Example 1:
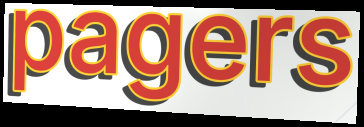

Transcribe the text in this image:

pagers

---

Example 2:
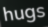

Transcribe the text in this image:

hugs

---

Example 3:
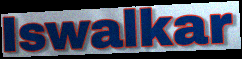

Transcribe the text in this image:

Iswalkar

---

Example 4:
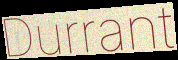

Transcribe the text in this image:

Durrant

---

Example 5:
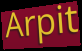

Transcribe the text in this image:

Arpit